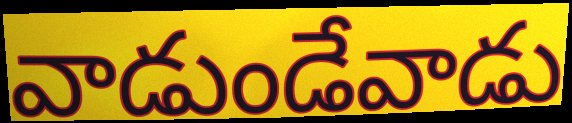
వాడుండేవాడు